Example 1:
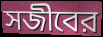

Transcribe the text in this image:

সজীবের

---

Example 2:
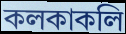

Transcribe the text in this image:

কলকাকলি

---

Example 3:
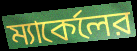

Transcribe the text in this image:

ম্যার্কেলের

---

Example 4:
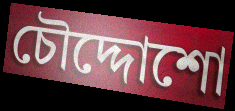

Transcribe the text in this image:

চৌদ্দোশো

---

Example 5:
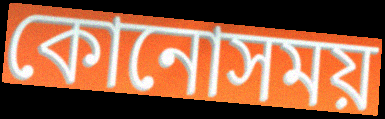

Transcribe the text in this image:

কোনোসময়